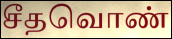
சீதவொண்